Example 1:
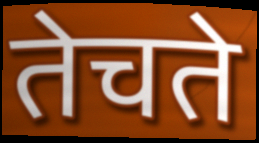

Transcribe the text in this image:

तेचते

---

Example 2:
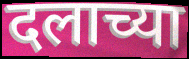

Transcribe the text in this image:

दलाच्या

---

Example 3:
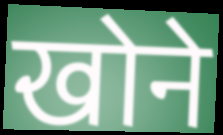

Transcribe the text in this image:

खोने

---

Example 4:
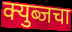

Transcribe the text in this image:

क्युब्जचा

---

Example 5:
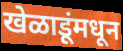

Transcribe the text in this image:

खेळाडूंमधून